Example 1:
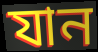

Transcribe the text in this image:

যান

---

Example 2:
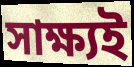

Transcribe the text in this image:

সাক্ষ্যই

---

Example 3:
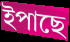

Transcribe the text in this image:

ইপাছে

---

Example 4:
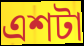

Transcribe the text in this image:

এশটা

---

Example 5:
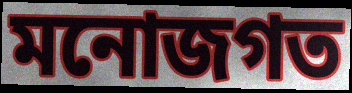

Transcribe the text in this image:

মনোজগত